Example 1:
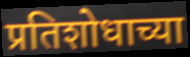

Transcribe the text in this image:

प्रतिशोधाच्या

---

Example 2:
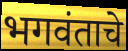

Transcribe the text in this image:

भगवंताचे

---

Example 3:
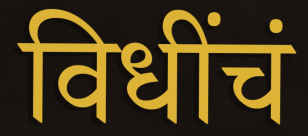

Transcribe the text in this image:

विधींचं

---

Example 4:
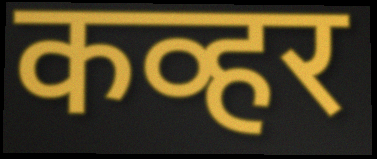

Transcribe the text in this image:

कव्हर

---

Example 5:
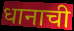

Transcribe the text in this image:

धानाची